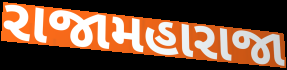
રાજામહારાજા